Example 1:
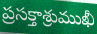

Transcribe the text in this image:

ప్రసక్తాశ్రుముఖీ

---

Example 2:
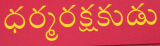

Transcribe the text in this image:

ధర్మరక్షకుడు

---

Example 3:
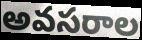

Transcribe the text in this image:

అవసరాల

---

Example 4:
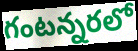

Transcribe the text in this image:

గంటన్నరలో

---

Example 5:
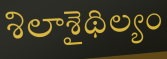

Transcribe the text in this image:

శిలాశైథిల్యం